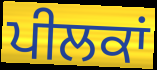
ਪੀਲਕਾਂ